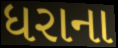
ધરાના